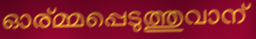
ഓര്മ്മപ്പെടുത്തുവാന്